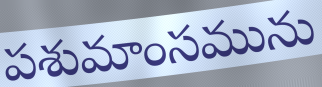
పశుమాంసమును